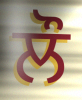
ਲੌ